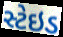
સ્ટેઇડ